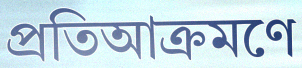
প্রতিআক্রমণে